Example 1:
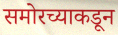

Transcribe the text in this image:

समोरच्याकडून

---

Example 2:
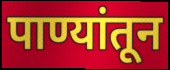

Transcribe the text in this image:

पाण्यांतून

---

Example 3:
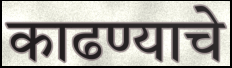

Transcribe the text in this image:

काढण्याचे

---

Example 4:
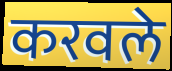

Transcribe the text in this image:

करवले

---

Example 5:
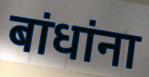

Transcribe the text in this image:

बांधांना